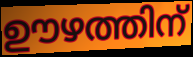
ഊഴത്തിന്